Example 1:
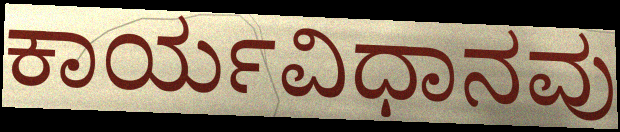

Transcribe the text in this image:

ಕಾರ್ಯವಿಧಾನವು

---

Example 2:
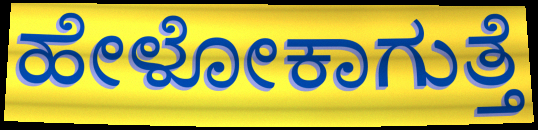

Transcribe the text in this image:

ಹೇಳೋಕಾಗುತ್ತೆ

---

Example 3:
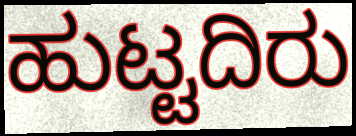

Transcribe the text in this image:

ಹುಟ್ಟದಿರು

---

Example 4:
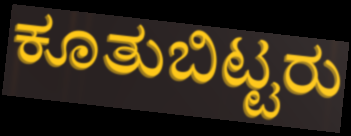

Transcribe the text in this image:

ಕೂತುಬಿಟ್ಟರು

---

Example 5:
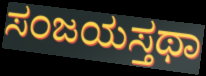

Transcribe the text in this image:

ಸಂಜಯಸ್ತಥಾ